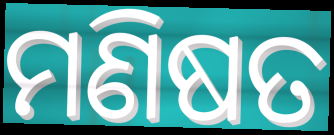
ମଣିଷତ